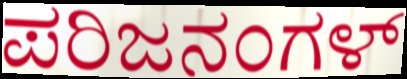
ಪರಿಜನಂಗಳ್